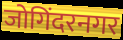
जोगिंदरनगर